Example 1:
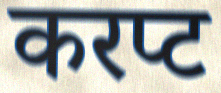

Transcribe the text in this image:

करप्ट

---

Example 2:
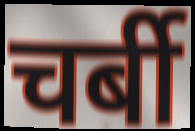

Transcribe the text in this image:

चर्बी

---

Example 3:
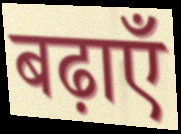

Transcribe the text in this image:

बढ़ाएँ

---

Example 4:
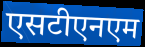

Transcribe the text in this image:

एसटीएनएम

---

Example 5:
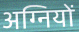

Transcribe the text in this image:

अग्नियों